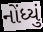
નોંધ્યું